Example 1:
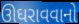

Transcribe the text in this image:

ઊઘરાવવાનો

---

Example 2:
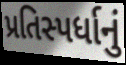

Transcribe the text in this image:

પ્રતિસ્પર્ધાનું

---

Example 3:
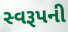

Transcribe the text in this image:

સ્વરૂપની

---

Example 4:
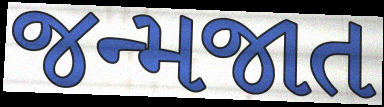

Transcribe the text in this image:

જન્મજાત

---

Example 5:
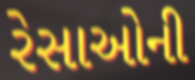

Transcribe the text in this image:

રેસાઓની